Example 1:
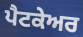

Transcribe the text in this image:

ਪੈਟਕੇਅਰ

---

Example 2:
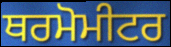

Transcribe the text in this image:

ਥਰਮੋਮੀਟਰ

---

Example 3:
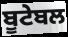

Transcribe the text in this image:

ਬੂਟੇਬਲ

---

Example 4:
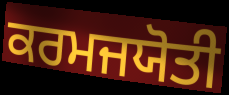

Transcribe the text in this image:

ਕਰਮਜਯੋਤੀ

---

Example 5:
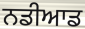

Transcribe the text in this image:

ਨਡੀਆਡ